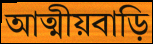
আত্মীয়বাড়ি